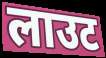
लाउट